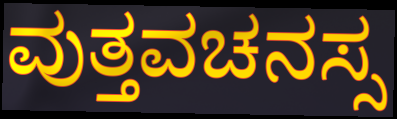
ವುತ್ತವಚನಸ್ಸ